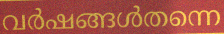
വർഷങ്ങൾതന്നെ